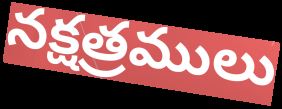
నక్షత్రములు